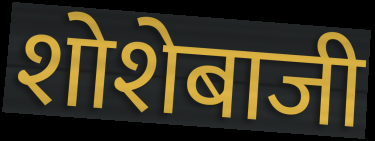
शोशेबाजी